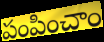
పంపించాం